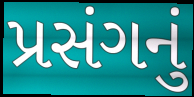
પ્રસંગનું